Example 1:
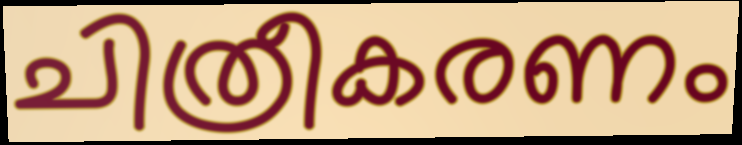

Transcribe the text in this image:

ചിത്രീകരണം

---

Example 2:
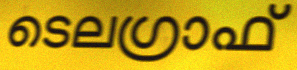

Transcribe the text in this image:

ടെലഗ്രാഫ്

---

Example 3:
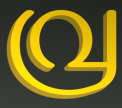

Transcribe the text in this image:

വ്ര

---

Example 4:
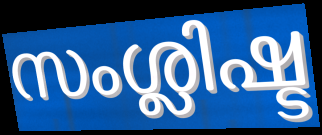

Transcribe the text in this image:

സംശ്ലിഷ്ട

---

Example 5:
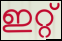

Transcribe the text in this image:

ഇറ്റ്